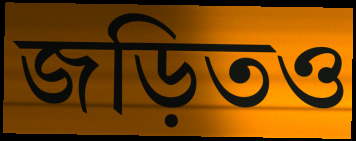
জড়িতও